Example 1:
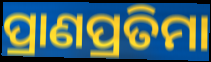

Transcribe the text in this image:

ପ୍ରାଣପ୍ରତିମା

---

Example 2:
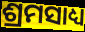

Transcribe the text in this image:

ଶ୍ରମସାଧ୍ୟ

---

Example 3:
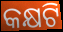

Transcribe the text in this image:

କକ୍ଷଟି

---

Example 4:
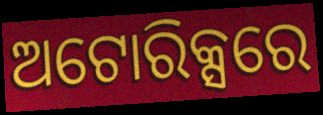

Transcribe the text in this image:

ଅଟୋରିକ୍ସରେ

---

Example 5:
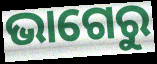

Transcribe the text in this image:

ଭାଗେରୁ